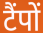
टैंपों